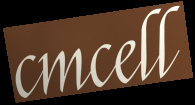
cmcell